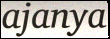
ajanya